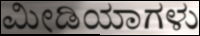
ಮೀಡಿಯಾಗಳು